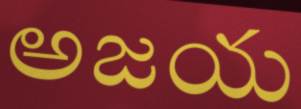
అజయ